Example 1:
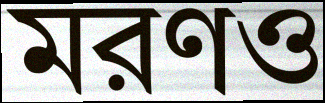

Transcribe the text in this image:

মরণও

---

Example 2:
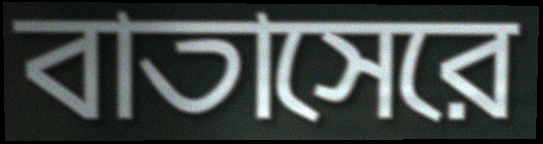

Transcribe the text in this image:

বাতাসেরে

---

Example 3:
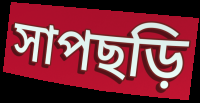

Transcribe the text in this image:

সাপছড়ি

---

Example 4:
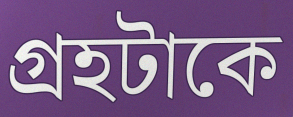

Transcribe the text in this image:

গ্রহটাকে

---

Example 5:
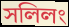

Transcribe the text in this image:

সলিলং